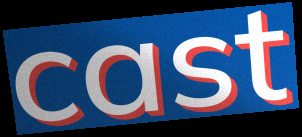
cast